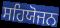
ਸਹਿਯੋਜਨ